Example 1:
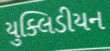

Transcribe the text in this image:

યુક્લિડીયન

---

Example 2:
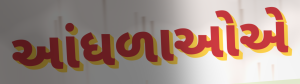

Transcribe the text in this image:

આંધળાઓએ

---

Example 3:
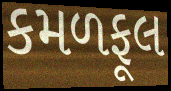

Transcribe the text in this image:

કમળફૂલ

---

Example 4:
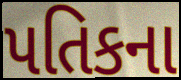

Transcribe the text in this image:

પતિકના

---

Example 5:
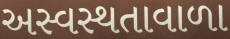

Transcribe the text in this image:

અસ્વસ્થતાવાળા